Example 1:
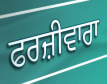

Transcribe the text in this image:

ਫਰਜ਼ੀਵਾਰਾ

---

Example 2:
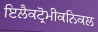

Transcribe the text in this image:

ਇਲੈਕਟ੍ਰੋਮੀਕਨਿਕਲ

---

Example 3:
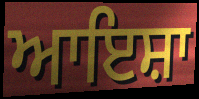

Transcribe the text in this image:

ਆਇਸ਼ਾ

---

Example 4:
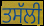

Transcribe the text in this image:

ਤਸੱਲੀ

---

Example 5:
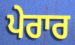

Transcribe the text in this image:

ਪੇਰਾਰ